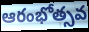
ఆరంభోత్సవ